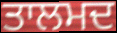
ਤਾਲਮਦ